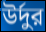
উর্দুর